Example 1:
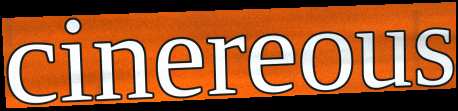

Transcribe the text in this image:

cinereous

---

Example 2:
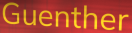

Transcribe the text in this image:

Guenther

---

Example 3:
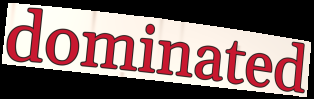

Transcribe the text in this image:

dominated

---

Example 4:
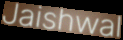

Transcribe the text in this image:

Jaishwal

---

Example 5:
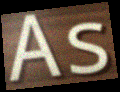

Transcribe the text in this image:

As